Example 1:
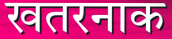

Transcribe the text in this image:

खतरनाक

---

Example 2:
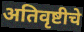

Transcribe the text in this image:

अतिवृष्टीचे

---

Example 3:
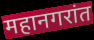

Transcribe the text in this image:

महानगरांत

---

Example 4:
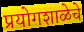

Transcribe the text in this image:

प्रयोगशाळेचे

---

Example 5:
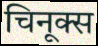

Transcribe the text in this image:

चिनूक्स